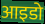
आइडो